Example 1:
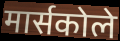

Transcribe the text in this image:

मार्सकोले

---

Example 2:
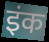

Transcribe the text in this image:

इंक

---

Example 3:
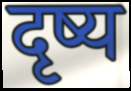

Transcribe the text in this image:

दृष्य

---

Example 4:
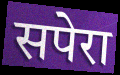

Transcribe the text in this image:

सपेरा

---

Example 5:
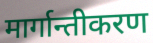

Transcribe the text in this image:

मार्गान्तीकरण